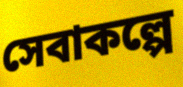
সেবাকল্পে